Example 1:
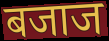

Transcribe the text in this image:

बजाज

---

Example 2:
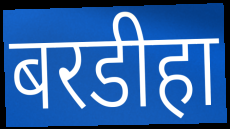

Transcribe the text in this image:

बरडीहा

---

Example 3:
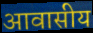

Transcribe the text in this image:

आवासीय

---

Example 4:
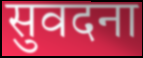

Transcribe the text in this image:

सुवदना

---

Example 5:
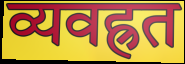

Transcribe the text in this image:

व्यवह्रत